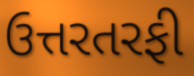
ઉત્તરતરફી